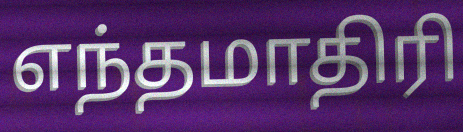
எந்தமாதிரி